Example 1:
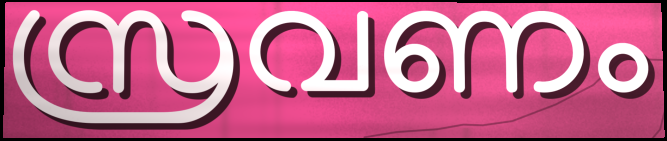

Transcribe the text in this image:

സ്രവണം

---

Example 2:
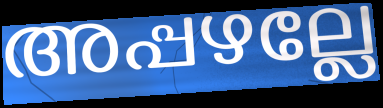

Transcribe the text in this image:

അപ്പഴല്ലേ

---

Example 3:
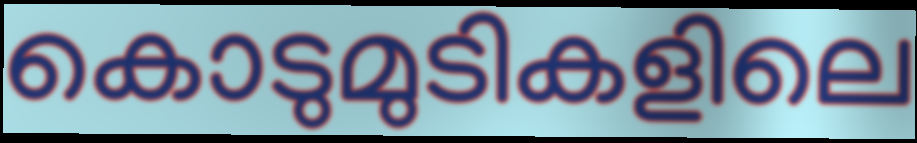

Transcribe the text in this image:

കൊടുമുടികളിലെ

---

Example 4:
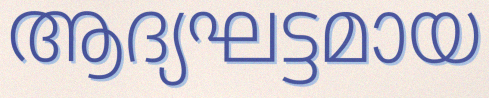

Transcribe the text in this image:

ആദ്യഘട്ടമായ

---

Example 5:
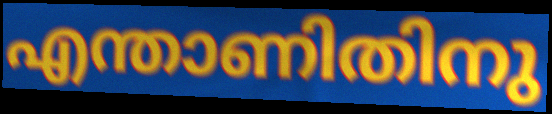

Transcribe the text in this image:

എന്താണിതിനു